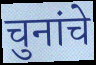
चुनांचे